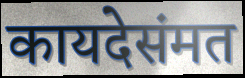
कायदेसंमत